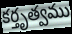
కర్తృత్వము